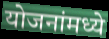
योजनांमध्ये